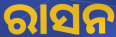
ରାସନ